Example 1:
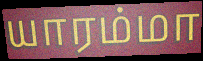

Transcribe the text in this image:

யாரம்மா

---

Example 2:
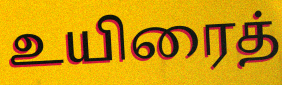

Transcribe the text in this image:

உயிரைத்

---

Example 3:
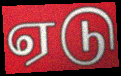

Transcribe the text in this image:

ஏடு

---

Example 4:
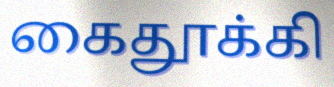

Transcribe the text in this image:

கைதூக்கி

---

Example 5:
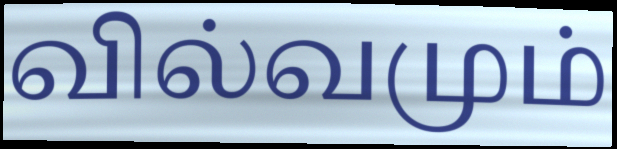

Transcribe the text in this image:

வில்வமும்